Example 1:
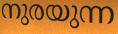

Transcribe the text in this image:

നുരയുന്ന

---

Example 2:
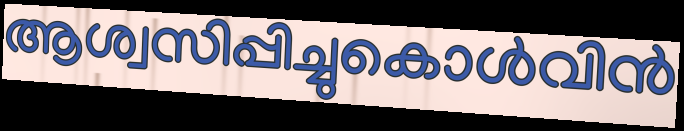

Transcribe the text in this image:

ആശ്വസിപ്പിച്ചുകൊൾവിൻ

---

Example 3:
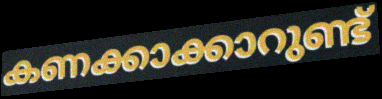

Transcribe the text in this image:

കണക്കാക്കാറുണ്ട്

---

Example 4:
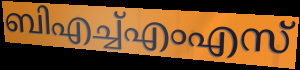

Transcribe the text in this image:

ബിഎച്ച്എംഎസ്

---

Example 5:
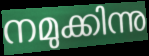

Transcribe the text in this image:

നമുക്കിന്നു